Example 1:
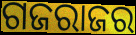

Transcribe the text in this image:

ଗଜରାଜର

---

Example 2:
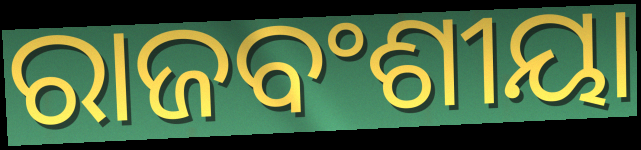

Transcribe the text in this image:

ରାଜବଂଶୀୟା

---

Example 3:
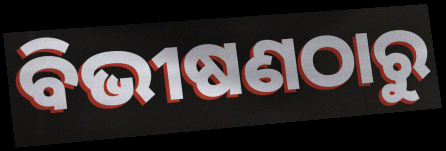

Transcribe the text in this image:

ବିଭୀଷଣଠାରୁ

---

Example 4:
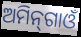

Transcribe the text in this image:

ଅମିନ୍‌ଗାଓଁ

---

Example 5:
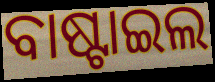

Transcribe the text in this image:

ବାଷ୍ଟାଇଲ